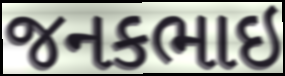
જનકભાઇ